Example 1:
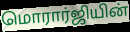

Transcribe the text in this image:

மொரார்ஜியின்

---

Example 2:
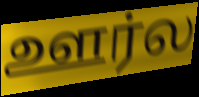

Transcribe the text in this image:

ஊர்ல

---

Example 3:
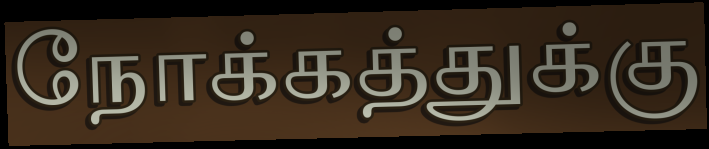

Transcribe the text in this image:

நோக்கத்துக்கு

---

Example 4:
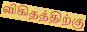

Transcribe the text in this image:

விகிதத்திற்கு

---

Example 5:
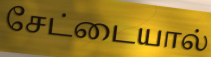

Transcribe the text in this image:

சேட்டையால்